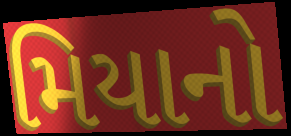
મિયાનો